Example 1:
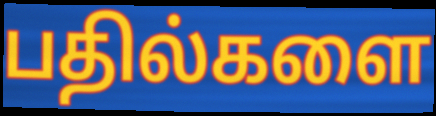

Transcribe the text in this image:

பதில்களை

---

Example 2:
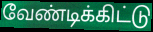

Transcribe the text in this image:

வேண்டிக்கிட்டு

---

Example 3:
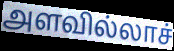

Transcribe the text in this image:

அளவில்லாச்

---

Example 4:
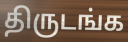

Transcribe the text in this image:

திருடங்க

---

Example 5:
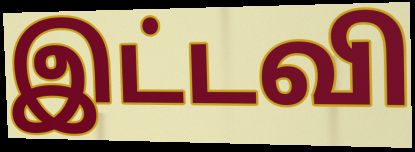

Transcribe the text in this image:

இட்டவி